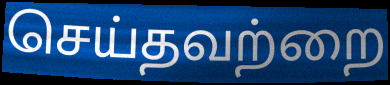
செய்தவற்றை